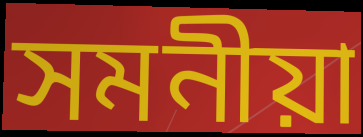
সমনীয়া